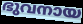
ഭുവനായ